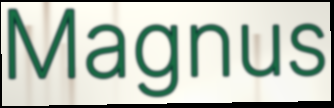
Magnus